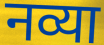
नव्‍या